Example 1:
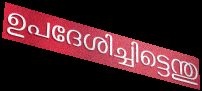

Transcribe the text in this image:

ഉപദേശിച്ചിട്ടെന്തു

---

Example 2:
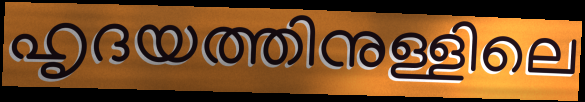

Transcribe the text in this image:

ഹൃദയത്തിനുള്ളിലെ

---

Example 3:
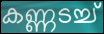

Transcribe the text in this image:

കണ്ണടച്ച്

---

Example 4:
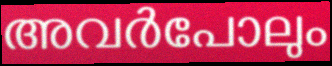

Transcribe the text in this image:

അവർപോലും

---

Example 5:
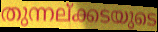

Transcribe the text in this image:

തുന്നല്ക്കടയുടെ